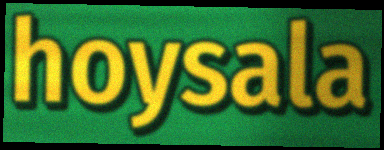
hoysala